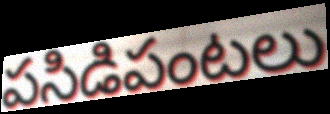
పసిడిపంటలు